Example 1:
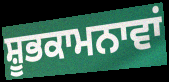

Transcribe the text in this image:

ਸ਼ੂਭਕਾਮਨਾਵਾਂ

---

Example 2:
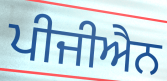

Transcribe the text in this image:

ਪੀਜੀਐਨ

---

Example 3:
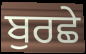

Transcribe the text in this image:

ਬੁਰਛੇ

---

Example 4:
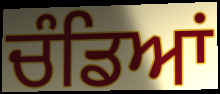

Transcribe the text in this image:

ਚੰਡਿਆਂ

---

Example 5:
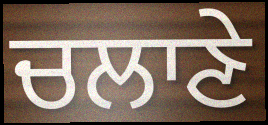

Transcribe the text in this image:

ਚਲਾਣੇ